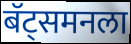
बॅट्समनला